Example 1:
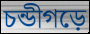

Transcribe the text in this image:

চন্ডীগড়ে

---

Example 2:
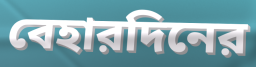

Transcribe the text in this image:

বেহারদিনের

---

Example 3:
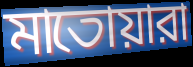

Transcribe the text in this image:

মাতোয়ারা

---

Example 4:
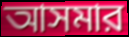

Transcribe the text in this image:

আসমার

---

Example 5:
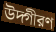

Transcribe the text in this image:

উদ্গীরণ